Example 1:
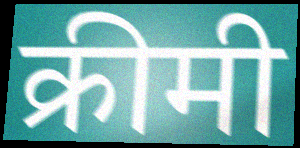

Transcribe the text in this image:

क्रीमी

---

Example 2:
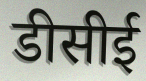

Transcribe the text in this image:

डीसीई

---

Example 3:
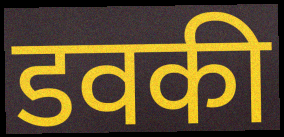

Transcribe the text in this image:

डवकी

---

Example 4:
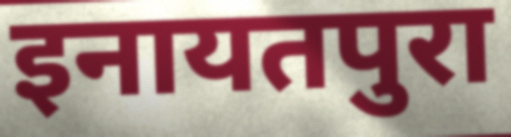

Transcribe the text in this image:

इनायतपुरा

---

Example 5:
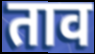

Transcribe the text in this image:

ताव